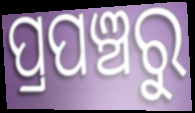
ପ୍ରପଞ୍ଚରୁ